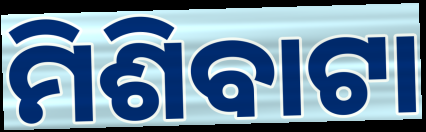
ମିଶିବାଟା